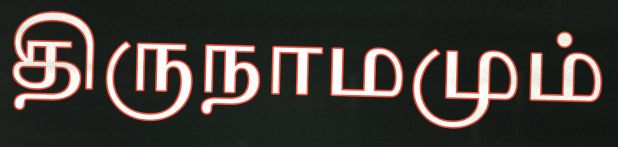
திருநாமமும்